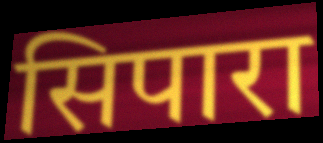
सिपारा